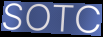
SOTC